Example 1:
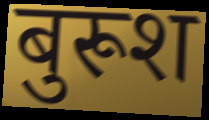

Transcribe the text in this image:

बुरूश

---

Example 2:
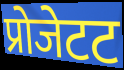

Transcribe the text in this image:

प्रोजेटट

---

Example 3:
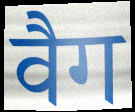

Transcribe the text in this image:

वैग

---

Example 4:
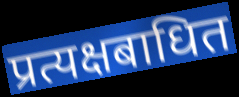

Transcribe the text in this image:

प्रत्यक्षबाधित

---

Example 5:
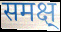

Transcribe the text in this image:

समक्ष्